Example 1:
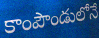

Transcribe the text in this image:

కాంపౌండులోనే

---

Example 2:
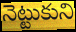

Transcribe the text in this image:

నెట్టుకుని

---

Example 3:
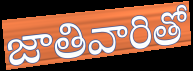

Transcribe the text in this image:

జాతివారితో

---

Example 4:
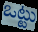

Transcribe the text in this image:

ఒట్టు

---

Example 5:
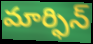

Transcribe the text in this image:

మార్ఫిన్